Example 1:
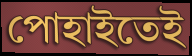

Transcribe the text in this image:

পোহাইতেই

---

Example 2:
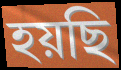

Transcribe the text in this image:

হয়ছি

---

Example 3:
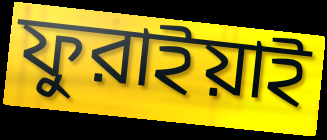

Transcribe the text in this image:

ফুরাইয়াই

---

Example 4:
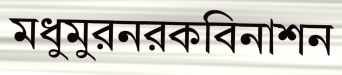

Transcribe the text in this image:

মধুমুরনরকবিনাশন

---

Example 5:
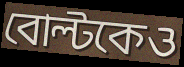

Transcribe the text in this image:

বোল্টকেও